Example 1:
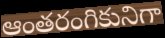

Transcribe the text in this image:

ఆంతరంగికునిగా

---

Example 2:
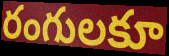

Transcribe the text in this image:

రంగులకూ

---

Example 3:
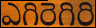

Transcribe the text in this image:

ఎగిరెగిరి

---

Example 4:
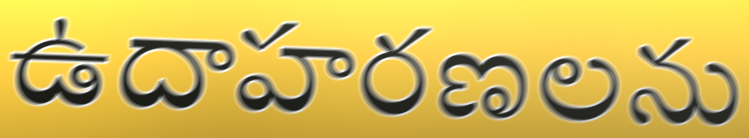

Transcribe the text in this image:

ఉదాహరణలను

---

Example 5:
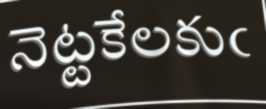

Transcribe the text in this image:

నెట్టకేలకుఁ